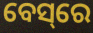
ବେସ୍‌ରେ